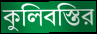
কুলিবস্তির